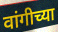
वांगीच्या